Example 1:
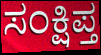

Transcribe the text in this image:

ಸಂಕ್ಷಿಪ್ತ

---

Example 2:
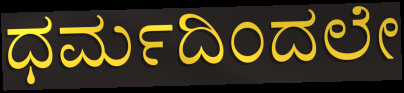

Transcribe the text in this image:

ಧರ್ಮದಿಂದಲೇ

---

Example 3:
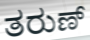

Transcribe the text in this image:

ತರುಣ್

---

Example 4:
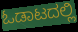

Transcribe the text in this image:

ಓಡಾಟದಲ್ಲಿ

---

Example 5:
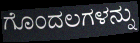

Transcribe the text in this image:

ಗೊಂದಲಗಳನ್ನು